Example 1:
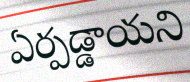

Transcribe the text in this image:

ఏర్పడ్డాయని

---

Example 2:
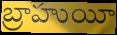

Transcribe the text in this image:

బ్రాహుయీ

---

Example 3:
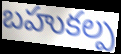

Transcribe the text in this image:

బహుకల్ప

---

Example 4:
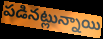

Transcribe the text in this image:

పడినట్లున్నాయి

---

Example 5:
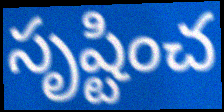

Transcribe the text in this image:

సృష్టించ